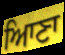
ਆਿਣਾ